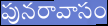
పునరావాసం